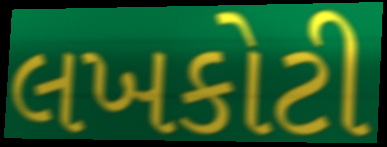
લખકોટી